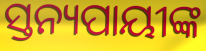
ସ୍ତନ୍ୟପାୟୀଙ୍କ